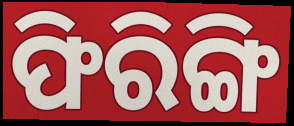
ଫିରିଙ୍ଗି